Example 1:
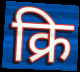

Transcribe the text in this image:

क्रि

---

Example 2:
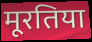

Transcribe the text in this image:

मूरतिया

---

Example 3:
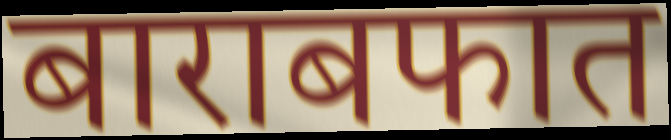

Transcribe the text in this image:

बाराबफात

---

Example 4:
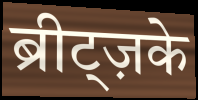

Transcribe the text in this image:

ब्रीट्ज़के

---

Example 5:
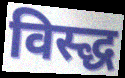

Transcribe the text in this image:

विस्द्ध